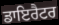
ਡਾਇਰੈਟਰ